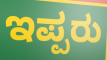
ಇಪ್ಪರು